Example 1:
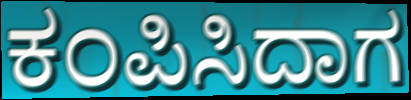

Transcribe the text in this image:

ಕಂಪಿಸಿದಾಗ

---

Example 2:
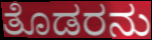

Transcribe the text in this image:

ತೊಡರನು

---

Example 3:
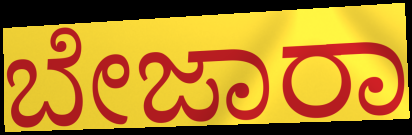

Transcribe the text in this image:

ಬೇಜಾರಾ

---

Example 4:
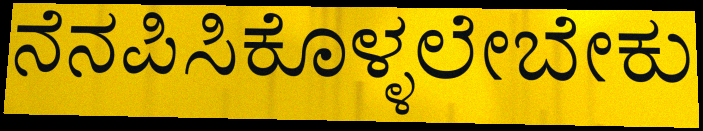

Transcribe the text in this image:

ನೆನಪಿಸಿಕೊಳ್ಳಲೇಬೇಕು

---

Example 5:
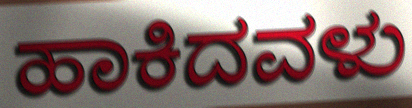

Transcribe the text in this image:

ಹಾಕಿದವಳು